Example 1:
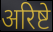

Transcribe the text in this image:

अरिष्टे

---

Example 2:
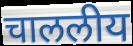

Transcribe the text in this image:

चाललीय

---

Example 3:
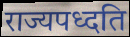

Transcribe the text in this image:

राज्यपध्दति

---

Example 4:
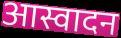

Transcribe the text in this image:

आस्वादन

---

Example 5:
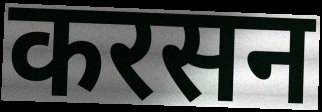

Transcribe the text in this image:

करसन